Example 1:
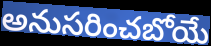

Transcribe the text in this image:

అనుసరించబోయే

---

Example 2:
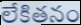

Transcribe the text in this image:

లేకితనం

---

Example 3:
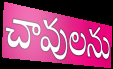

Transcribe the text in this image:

చావులను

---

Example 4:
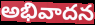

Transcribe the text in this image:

అభివాదన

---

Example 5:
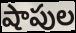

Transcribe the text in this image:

షాపుల